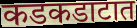
कडकडाटात